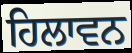
ਹਿਲਾਵਨ